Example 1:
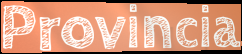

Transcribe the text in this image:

Provincia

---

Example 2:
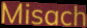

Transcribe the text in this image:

Misach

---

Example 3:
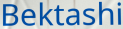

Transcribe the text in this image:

Bektashi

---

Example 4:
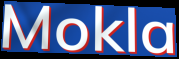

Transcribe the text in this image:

Mokla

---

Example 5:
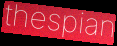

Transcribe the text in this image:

thespian